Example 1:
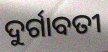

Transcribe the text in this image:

ଦୁର୍ଗାବତୀ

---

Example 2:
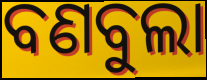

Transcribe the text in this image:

ବଣବୁଲା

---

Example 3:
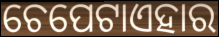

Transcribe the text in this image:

ଚେପେଟାଏହାର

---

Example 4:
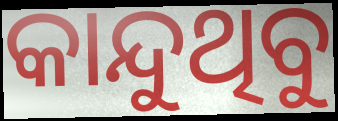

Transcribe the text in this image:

କାନ୍ଦୁଥିବୁ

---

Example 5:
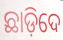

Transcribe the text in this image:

ଛାଡ଼ିଦେ